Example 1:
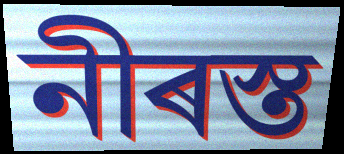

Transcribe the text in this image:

নীৰস্ত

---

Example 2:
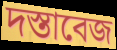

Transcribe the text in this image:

দস্তাবেজ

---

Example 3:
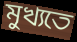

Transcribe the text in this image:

মুখ্যতে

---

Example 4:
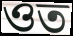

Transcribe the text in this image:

ওত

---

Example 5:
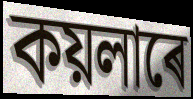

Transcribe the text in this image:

কয়লাৰে